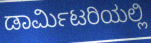
ಡಾರ್ಮಿಟರಿಯಲ್ಲಿ